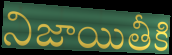
నిజాయితీకి